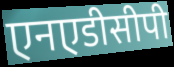
एनएडीसीपी